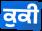
ਕੁਕੀ